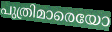
പുത്രിമാരെയോ